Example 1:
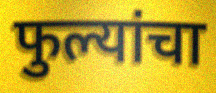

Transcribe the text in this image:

फुल्यांचा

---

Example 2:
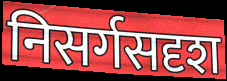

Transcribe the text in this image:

निसर्गसदृश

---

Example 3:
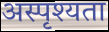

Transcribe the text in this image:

अस्पृश्यता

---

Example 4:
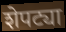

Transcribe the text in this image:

शेपट्या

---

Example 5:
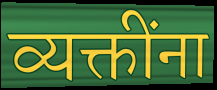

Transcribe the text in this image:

व्यक्तींना